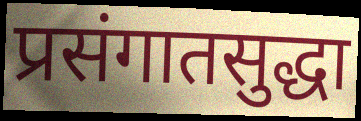
प्रसंगातसुद्धा